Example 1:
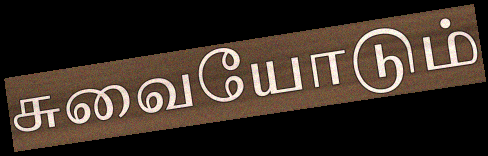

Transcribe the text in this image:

சுவையோடும்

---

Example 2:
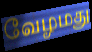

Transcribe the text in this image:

வேழமது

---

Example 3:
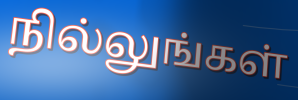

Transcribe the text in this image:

நில்லுங்கள்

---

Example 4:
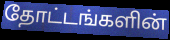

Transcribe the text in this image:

தோட்டங்களின்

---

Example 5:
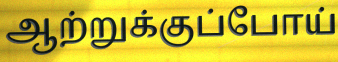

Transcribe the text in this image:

ஆற்றுக்குப்போய்